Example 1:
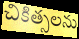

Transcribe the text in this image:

చికిత్సలను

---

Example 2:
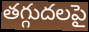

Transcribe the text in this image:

తగ్గుదలపై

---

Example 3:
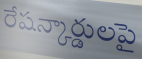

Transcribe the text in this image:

రేషన్కార్డులపై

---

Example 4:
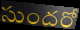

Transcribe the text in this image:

సుందరో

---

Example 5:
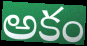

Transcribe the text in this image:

అకం